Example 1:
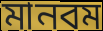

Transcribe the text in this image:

মানবম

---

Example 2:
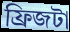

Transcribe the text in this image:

ফ্রিজটা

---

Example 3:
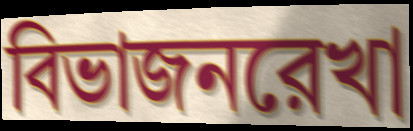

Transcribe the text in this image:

বিভাজনরেখা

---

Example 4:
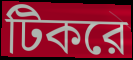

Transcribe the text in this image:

টিকরে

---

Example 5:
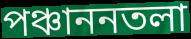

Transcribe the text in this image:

পঞ্চাননতলা